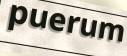
puerum